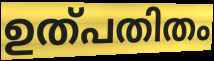
ഉത്പതിതം